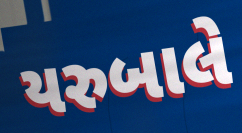
યરુબાલે